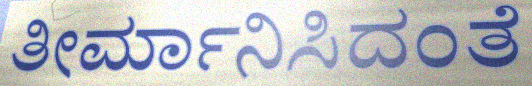
ತೀರ್ಮಾನಿಸಿದಂತೆ